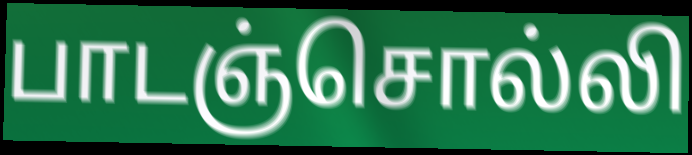
பாடஞ்சொல்லி